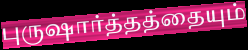
புருஷார்த்தத்தையும்